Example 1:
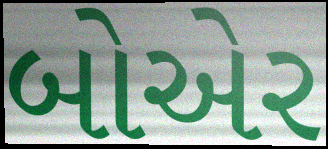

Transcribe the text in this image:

બોએર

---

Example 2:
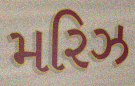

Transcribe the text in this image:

મરિઝ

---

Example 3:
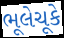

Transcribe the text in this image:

ભૂલેચૂકે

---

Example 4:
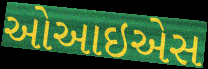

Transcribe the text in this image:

ઓઆઇએસ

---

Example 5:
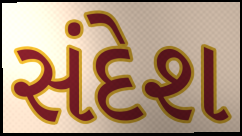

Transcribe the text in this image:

સંદેશ